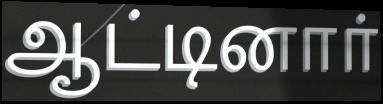
ஆட்டினார்